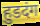
हुडदंग